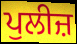
ਪੁਲੀਜ਼